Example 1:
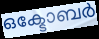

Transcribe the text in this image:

ഒക്ടോബർ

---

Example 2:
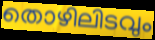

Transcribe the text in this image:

തൊഴിലിടവും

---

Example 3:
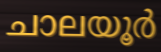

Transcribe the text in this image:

ചാലയൂർ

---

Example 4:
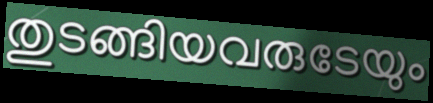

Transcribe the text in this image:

തുടങ്ങിയവരുടേയും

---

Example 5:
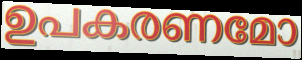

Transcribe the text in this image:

ഉപകരണമോ